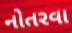
નોતરવા